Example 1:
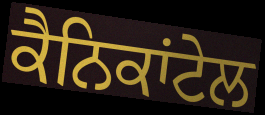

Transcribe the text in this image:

ਕੈਨਿਕਾਂਟੇਲ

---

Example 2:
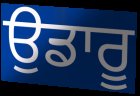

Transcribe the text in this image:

ਉਡਾਰੂ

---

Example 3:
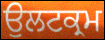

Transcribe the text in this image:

ਉਲਟਕ੍ਰਮ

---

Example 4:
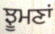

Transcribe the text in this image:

ਝੂਮਣਾਂ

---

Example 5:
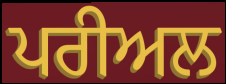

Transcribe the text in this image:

ਪਰੀਅਲ